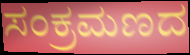
ಸಂಕ್ರಮಣದ